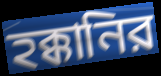
হক্কানির